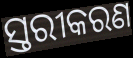
ସ୍ତରୀକରଣ